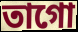
তাগো